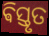
ଵିସ୍ତୃତ